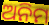
ଅନିମ